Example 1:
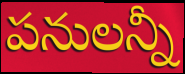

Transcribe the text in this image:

పనులన్నీ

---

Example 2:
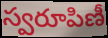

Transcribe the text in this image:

స్వరూపిణీ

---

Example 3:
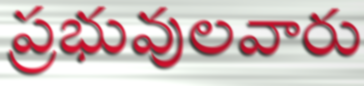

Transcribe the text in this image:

ప్రభువులవారు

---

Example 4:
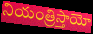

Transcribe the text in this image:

నియంత్రిస్తాయో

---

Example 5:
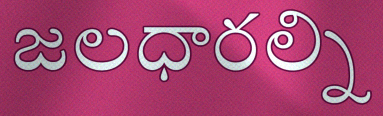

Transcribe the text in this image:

జలధారల్ని